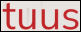
tuus